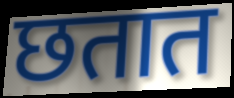
छतात